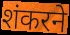
शंकरने